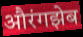
औरंगझेब